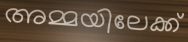
അമ്മയിലേക്ക്